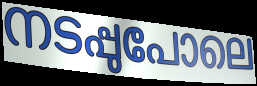
നടപ്പുപോലെ